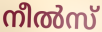
നീൽസ്